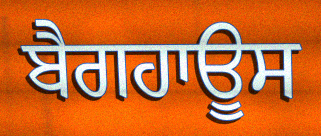
ਬੈਗਹਾਊਸ